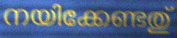
നയിക്കേണ്ടതു്